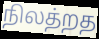
நிலத்றத